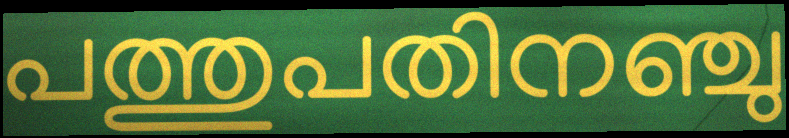
പത്തുപതിനഞ്ചു